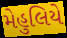
મેહુલિયે